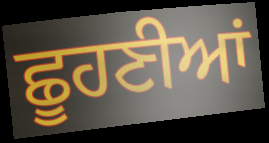
ਛੂਹਣੀਆਂ